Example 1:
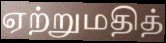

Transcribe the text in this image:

ஏற்றுமதித்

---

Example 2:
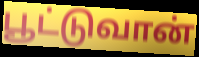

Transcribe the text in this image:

பூட்டுவான்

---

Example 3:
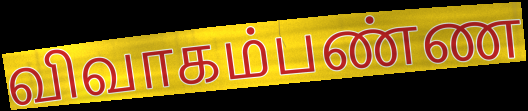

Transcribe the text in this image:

விவாகம்பண்ண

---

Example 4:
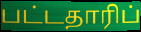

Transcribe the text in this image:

பட்டதாரிப்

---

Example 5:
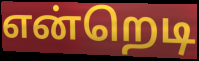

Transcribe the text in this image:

என்றெடி